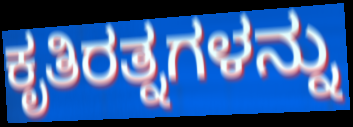
ಕೃತಿರತ್ನಗಳನ್ನು